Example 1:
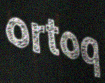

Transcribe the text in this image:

ortoq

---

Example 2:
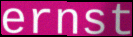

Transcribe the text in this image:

ernst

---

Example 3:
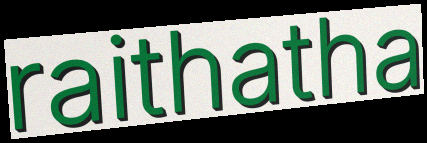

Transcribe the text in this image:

raithatha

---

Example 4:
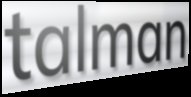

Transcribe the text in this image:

talman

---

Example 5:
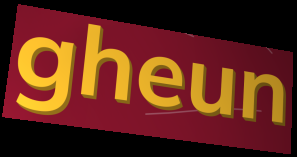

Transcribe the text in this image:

gheun